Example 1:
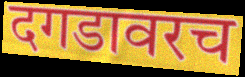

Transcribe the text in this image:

दगडावरच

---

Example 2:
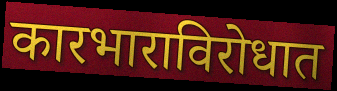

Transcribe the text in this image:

कारभाराविरोधात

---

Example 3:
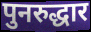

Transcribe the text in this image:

पुनरुद्धार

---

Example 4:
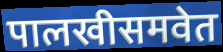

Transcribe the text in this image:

पालखीसमवेत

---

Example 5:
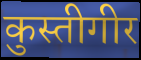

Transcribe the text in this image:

कुस्तीगीर